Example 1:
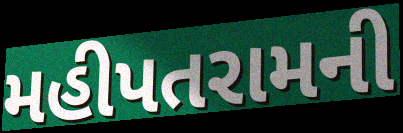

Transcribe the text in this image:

મહીપતરામની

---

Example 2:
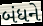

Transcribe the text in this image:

બંધને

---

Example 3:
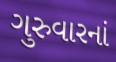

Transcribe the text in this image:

ગુરુવારનાં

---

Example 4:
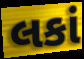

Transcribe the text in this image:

લકાં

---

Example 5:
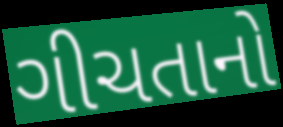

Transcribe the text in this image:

ગીચતાનો